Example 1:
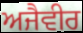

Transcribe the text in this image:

ਅਜੈਵੀਰ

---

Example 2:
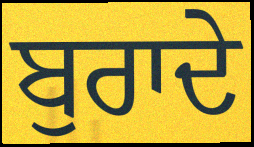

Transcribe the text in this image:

ਬੁਰਾਦੇ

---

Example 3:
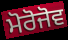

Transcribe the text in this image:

ਮੋਰੋਜੋਵ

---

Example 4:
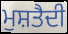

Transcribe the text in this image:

ਮੁਸ਼ਤੈਦੀ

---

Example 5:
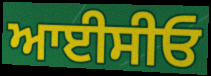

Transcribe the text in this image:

ਆਈਸੀਓ